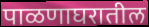
पाळणाघरातील